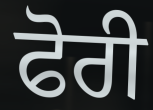
ਫੋਰੀ